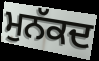
ਮੁਨੱਕਦ